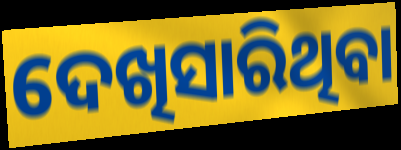
ଦେଖିସାରିଥିବା